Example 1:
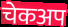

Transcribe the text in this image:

चेकअप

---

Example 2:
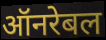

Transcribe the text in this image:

ऑनरेबल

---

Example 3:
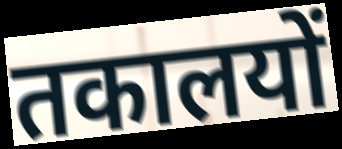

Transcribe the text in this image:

तकालयों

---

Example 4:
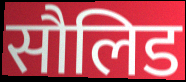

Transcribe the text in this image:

सौलिड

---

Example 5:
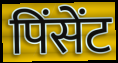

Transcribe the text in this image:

पिंसेंट